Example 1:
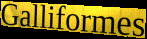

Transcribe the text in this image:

Galliformes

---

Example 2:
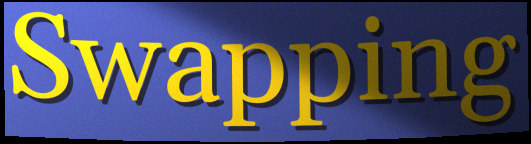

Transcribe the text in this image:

Swapping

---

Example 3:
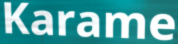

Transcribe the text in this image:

Karame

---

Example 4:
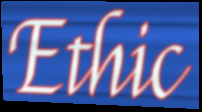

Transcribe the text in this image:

Ethic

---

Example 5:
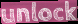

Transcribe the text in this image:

unlock